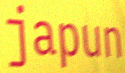
japun